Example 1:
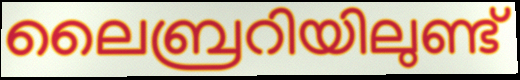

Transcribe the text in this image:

ലൈബ്രറിയിലുണ്ട്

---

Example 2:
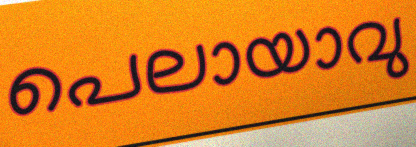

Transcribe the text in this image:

പെലായാവു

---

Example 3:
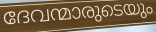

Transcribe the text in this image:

ദേവന്മാരുടെയും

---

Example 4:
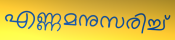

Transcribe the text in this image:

എണ്ണമനുസരിച്ച്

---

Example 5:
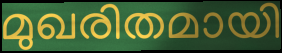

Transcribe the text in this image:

മുഖരിതമായി